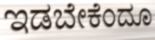
ಇಡಬೇಕೆಂದೂ